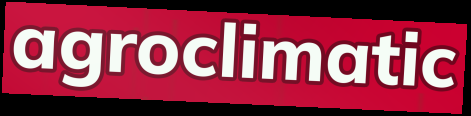
agroclimatic